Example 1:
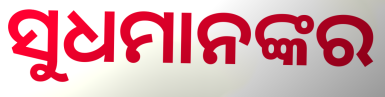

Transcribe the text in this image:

ସୁଧମାନଙ୍କର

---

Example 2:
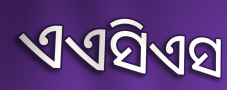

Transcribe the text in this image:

ଏଏସିଏସ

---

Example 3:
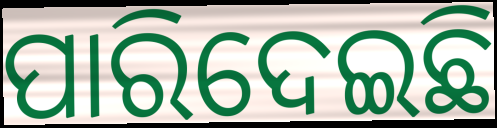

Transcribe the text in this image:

ପାରିଦେଇଛି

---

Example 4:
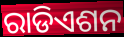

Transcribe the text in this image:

ରାଡିଏଶନ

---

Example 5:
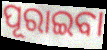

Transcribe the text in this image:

ପୂରାଇବା